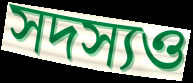
সদস্যও